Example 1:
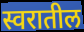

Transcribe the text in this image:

स्वरातील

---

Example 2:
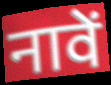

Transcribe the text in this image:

नावें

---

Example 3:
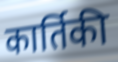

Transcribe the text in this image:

कार्तिकी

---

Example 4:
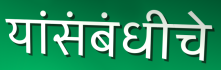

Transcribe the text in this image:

यांसंबंधीचे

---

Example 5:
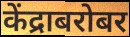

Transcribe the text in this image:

केंद्राबरोबर